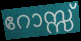
റോസ്സ്